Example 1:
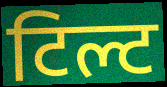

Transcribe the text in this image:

टिल्ट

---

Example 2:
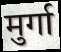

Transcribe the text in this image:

मुर्गा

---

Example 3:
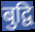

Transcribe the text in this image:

बुद्वि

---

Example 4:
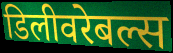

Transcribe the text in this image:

डिलीवरेबल्स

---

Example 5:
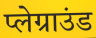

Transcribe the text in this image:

प्लेग्राउंड